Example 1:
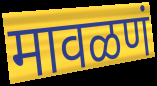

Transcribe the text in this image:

मावळणं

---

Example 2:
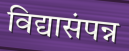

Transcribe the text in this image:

विद्यासंपन्न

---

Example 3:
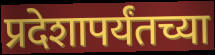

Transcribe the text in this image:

प्रदेशापर्यंतच्या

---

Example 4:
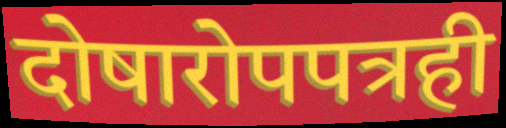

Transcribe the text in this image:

दोषारोपपत्रही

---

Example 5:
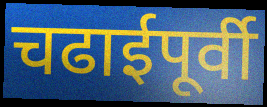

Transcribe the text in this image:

चढाईपूर्वी